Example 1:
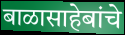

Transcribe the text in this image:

बाळासाहेबांचे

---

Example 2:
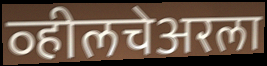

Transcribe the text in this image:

व्हीलचेअरला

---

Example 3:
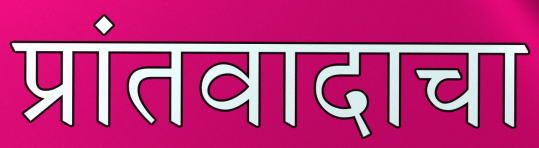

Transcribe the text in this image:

प्रांतवादाचा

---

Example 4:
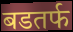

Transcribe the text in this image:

बडतर्फ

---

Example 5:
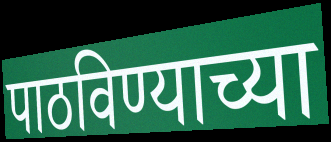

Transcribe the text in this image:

पाठविण्याच्या